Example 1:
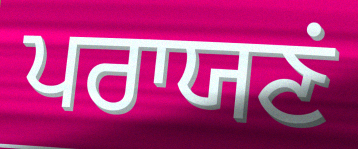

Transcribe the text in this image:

ਪਰਾਯਣਂ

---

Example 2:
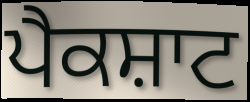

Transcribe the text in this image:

ਪੈਕਸ਼ਾਟ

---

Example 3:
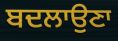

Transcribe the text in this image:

ਬਦਲਾਉਣਾ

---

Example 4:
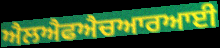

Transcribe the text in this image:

ਐਲਐਫਐਚਆਰਆਈ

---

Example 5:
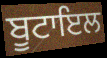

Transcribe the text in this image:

ਬੂਟਾਇਲ